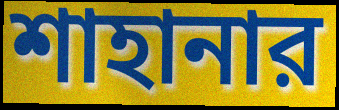
শাহানার